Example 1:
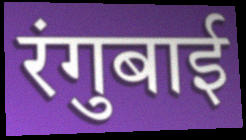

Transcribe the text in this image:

रंगुबाई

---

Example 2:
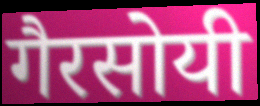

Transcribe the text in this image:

गैरसोयी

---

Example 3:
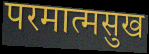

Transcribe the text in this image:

परमात्मसुख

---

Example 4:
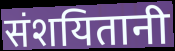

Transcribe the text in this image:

संशयितानी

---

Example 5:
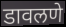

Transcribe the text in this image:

डावलणे